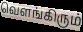
வெளங்கிரும்